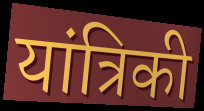
यांत्रिकी